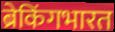
ब्रेकिंगभारत